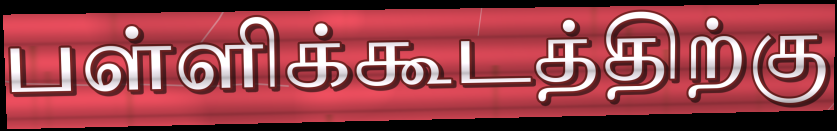
பள்ளிக்கூடத்திற்கு